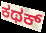
ಕಥಕ್